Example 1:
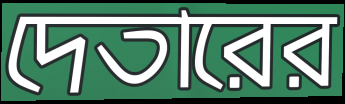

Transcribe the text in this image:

দেতারের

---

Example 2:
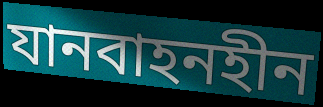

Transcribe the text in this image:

যানবাহনহীন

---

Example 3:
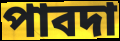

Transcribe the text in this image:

পাবদা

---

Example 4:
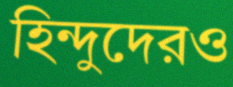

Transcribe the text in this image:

হিন্দুদেরও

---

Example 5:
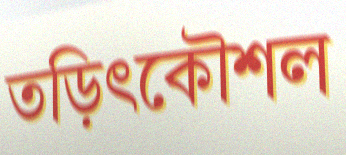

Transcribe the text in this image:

তড়িৎকৌশল